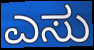
ಎಸು